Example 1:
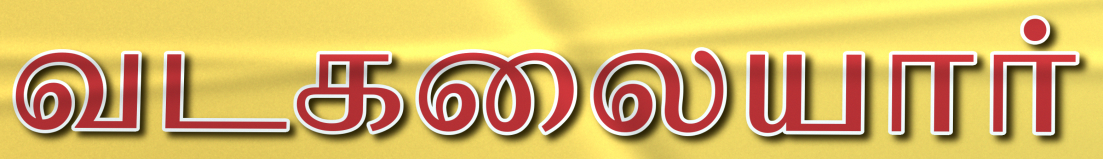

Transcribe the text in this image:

வடகலையார்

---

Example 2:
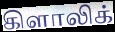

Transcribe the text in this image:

கிளாலிக்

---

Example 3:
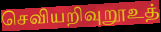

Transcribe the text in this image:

செவியறிவுறூஉத்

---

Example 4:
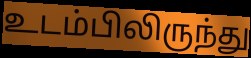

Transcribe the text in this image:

உடம்பிலிருந்து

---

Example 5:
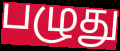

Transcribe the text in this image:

பழுது